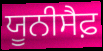
ਯੂਨੀਸੈਫ਼